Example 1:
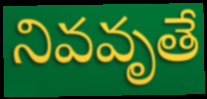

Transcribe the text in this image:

నివవృతే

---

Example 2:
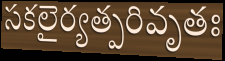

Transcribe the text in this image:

సకలైర్యత్పరివృతః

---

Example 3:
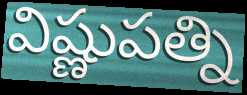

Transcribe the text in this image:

విష్ణుపత్ని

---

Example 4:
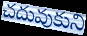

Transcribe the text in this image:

చదువుకుని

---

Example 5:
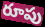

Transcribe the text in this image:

రూపు